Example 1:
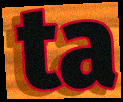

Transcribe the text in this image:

ta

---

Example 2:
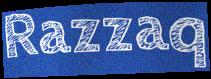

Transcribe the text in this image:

Razzaq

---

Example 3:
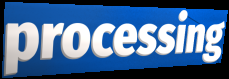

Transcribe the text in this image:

processing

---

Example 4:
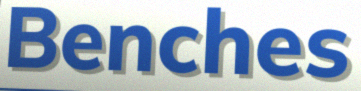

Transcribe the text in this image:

Benches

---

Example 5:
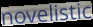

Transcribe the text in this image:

novelistic